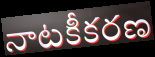
నాటకీకరణ